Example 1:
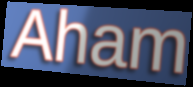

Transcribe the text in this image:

Aham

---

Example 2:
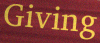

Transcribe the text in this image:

Giving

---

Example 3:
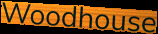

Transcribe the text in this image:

Woodhouse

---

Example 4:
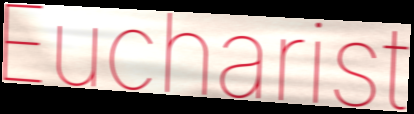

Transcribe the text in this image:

Eucharist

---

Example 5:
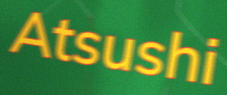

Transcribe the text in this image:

Atsushi